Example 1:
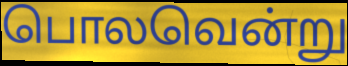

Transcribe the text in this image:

பொலவென்று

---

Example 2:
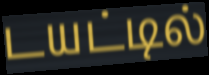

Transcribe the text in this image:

டயட்டில்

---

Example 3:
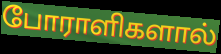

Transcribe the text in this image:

போராளிகளால்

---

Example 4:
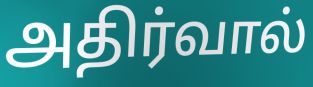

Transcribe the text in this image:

அதிர்வால்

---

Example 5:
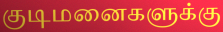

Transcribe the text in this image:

குடிமனைகளுக்கு